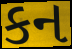
કન